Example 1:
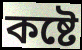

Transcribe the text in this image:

কষ্টে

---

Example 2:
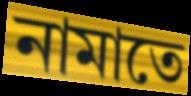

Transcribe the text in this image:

নামাতে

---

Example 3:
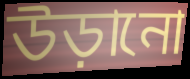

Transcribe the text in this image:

উড়ানো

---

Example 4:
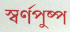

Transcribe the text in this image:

স্বর্ণপুষ্প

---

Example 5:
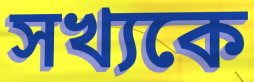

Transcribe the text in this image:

সখ্যকে